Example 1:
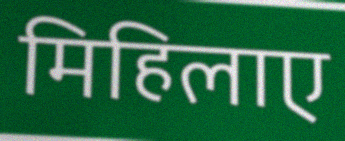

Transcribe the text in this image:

मिहिलाए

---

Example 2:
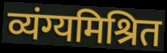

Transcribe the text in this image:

व्यंग्यमिश्रित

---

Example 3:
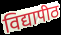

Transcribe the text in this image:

विद्यापीठ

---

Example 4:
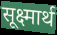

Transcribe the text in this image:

सूक्ष्मार्थ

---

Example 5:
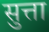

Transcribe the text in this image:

सुत्ता